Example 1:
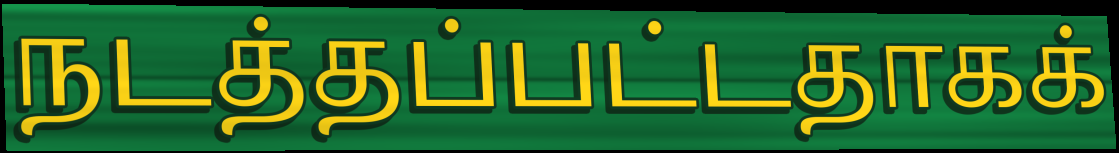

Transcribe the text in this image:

நடத்தப்பட்டதாகக்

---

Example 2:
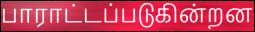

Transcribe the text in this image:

பாராட்டப்படுகின்றன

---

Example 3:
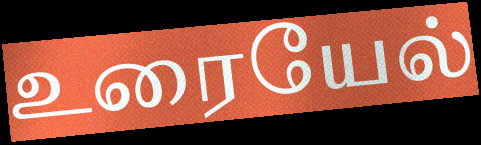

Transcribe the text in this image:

உரையேல்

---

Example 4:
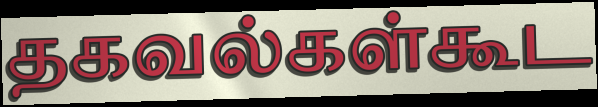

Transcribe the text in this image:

தகவல்கள்கூட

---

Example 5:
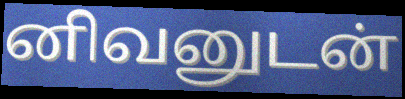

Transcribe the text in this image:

னிவனுடன்